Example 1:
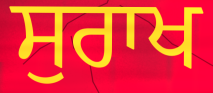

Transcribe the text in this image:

ਸੁਰਾਖ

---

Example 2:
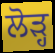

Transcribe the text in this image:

ਲੋੜ੍ਹ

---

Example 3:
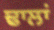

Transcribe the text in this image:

ਢਾਲਾਂ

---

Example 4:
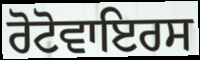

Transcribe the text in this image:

ਰੋਟੋਵਾਇਰਸ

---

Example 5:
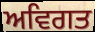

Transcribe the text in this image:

ਅਵਿਗਤ